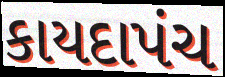
કાયદાપંચ